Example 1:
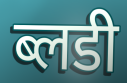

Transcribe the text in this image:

ब्लडी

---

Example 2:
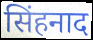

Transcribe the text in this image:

सिंहनाद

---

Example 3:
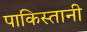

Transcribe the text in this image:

पाकिस्‍तानी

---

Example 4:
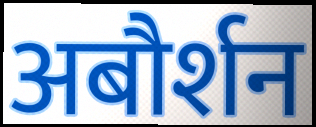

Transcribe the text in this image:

अबौर्शन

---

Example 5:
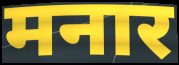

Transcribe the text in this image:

मनार